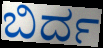
ಬಿರ್ದ